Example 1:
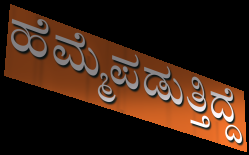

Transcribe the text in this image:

ಹೆಮ್ಮೆಪಡುತ್ತಿದ್ದೆ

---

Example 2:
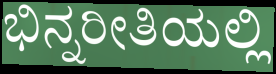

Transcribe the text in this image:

ಭಿನ್ನರೀತಿಯಲ್ಲಿ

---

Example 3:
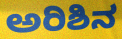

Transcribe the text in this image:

ಅರಿಶಿನ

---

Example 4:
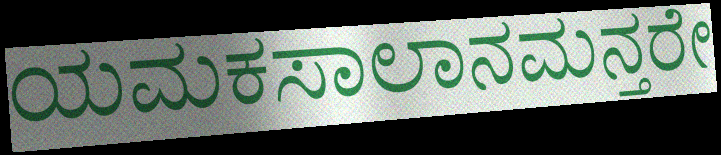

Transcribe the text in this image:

ಯಮಕಸಾಲಾನಮನ್ತರೇ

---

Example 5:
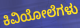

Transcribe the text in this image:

ಕಿವಿಯೋಲೆಗಳು